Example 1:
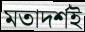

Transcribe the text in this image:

মতাদৰ্শই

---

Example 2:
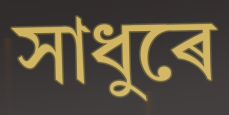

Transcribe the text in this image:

সাধুৰে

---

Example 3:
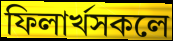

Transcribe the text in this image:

ফিলাৰ্খসকলে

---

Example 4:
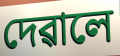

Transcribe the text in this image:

দেৱালে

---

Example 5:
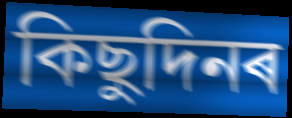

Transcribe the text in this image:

কিছুদিনৰ